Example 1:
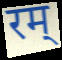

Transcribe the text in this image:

रम्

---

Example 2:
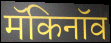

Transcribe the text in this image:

मॅकिनॉव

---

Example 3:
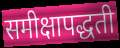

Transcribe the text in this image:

समीक्षापद्धती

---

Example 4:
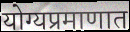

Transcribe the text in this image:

योग्यप्रमाणात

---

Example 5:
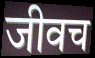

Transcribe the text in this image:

जीवच